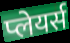
प्‍लेयर्स